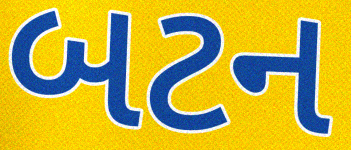
બટન